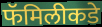
फॅमिलीकडे